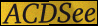
ACDSee